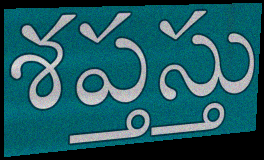
శప్తస్తు